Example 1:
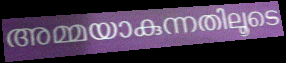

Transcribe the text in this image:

അമ്മയാകുന്നതിലൂടെ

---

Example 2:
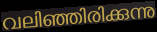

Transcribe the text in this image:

വലിഞ്ഞിരിക്കുന്നു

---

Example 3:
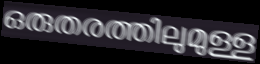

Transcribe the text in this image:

ഒരുതരത്തിലുമുള്ള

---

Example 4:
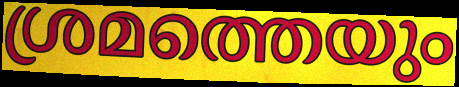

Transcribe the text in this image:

ശ്രമത്തെയും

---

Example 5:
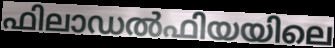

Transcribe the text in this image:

ഫിലാഡൽഫിയയിലെ